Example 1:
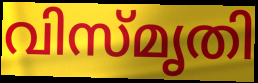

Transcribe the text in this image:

വിസ്മൃതി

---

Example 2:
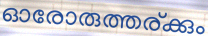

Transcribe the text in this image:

ഓരോരുത്തര്ക്കും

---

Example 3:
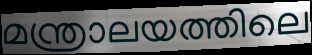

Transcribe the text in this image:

മന്ത്രാലയത്തിലെ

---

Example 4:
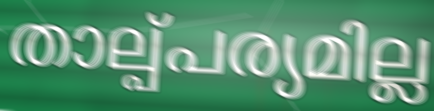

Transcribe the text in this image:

താല്പ്പര്യമില്ല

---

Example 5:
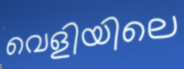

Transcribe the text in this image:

വെളിയിലെ